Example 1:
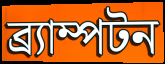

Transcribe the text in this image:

ব্র্যাম্পটন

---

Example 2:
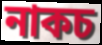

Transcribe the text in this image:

নাকচ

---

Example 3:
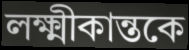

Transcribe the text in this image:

লক্ষ্মীকান্তকে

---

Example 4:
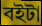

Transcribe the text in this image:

বইটা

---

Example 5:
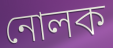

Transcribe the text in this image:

নোলক